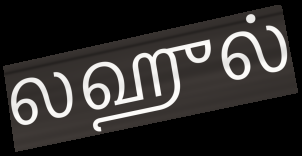
லஹுல்